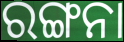
ରଙ୍ଗନା